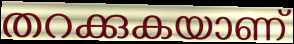
തറക്കുകയാണ്